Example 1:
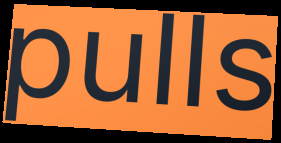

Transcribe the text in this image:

pulls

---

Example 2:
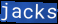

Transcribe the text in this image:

jacks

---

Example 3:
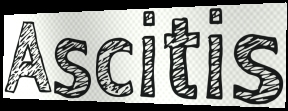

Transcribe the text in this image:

Ascitis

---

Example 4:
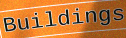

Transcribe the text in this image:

Buildings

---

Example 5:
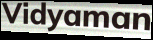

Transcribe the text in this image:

Vidyaman